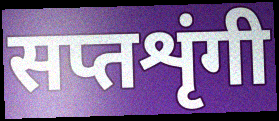
सप्तशृंगी